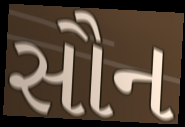
સૌન